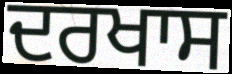
ਦਰਖਾਸ